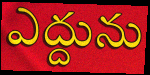
ఎద్దును